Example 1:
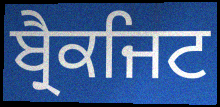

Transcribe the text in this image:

ਬ੍ਰੈਕਜਿਟ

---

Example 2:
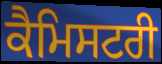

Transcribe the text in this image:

ਕੈਮਿਸਟਰੀ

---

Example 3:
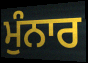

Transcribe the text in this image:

ਮੁੰਨਾਰ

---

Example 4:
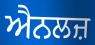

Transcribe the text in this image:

ਐਨਲਜ਼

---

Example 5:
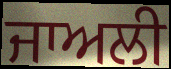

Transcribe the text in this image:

ਜਾਅਲੀ